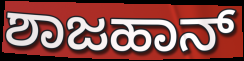
ಶಾಜಹಾನ್